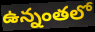
ఉన్నంతలో